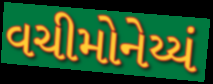
વચીમોનેય્યં